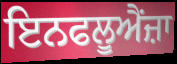
ਇਨਫਲੂਐਂਜ਼ਾ